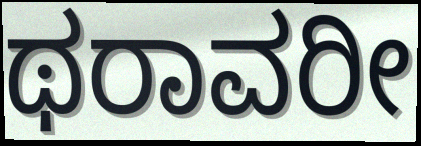
ಥರಾವರೀ